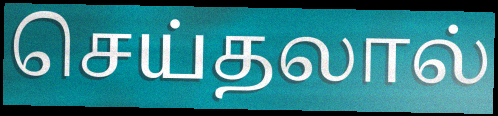
செய்தலால்